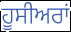
ਹੂਸੀਅਰਾਂ